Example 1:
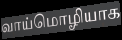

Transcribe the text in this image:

வாய்மொழியாக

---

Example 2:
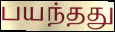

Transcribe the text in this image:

பயந்தது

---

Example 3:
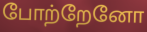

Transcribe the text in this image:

போற்றேனோ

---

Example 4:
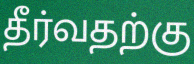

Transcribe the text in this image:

தீர்வதற்கு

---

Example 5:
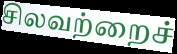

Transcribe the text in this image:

சிலவற்றைச்